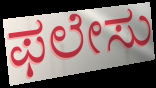
ಫಲೇಸು